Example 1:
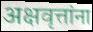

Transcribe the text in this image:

अक्षवृत्तांना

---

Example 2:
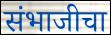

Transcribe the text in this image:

संभाजीचा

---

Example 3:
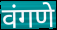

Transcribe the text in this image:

वंगणे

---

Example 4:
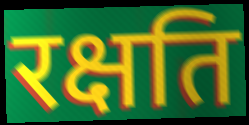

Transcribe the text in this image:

रक्षति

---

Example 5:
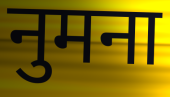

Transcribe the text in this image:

नुमना